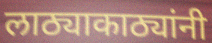
लाठ्याकाठ्यांनी